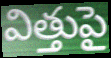
విత్తుపై